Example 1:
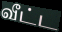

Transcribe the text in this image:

வீட்ட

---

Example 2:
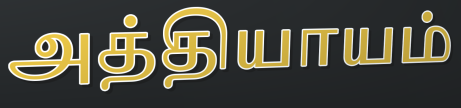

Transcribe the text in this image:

அத்தியாயம்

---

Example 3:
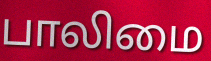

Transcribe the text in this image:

பாலிமை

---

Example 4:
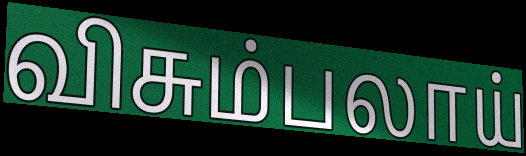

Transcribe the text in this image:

விசும்பலாய்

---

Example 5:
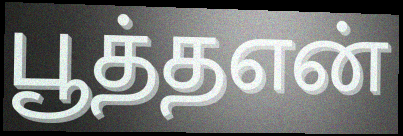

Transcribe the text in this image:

பூத்தஎன்